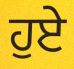
ਹੁਏ